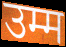
उम्म